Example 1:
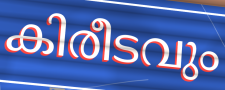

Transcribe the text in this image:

കിരീടവും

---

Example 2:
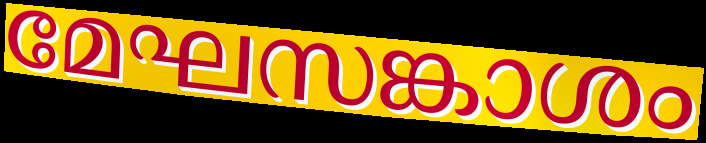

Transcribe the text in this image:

മേഘസങ്കാശം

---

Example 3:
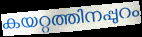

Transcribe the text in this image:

കയറ്റത്തിനപ്പുറം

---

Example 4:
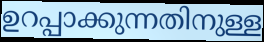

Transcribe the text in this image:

ഉറപ്പാക്കുന്നതിനുള്ള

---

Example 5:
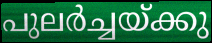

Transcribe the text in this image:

പുലർച്ചയ്ക്കു